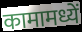
कामामध्यें